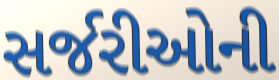
સર્જરીઓની